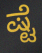
ಷ್ಟೆ